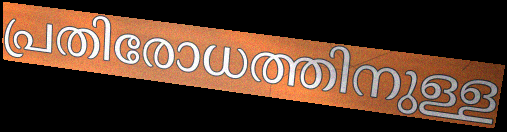
പ്രതിരോധത്തിനുള്ള